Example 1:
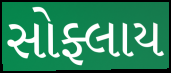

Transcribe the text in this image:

સોફ્લાય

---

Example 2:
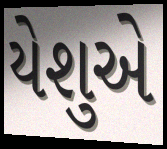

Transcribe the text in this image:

યેશુએ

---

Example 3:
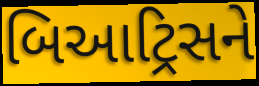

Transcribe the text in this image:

બિઆટ્રિસને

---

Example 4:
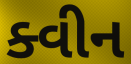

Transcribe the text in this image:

ક્વીન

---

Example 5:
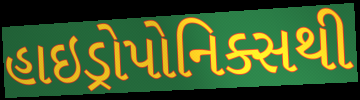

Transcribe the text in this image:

હાઇડ્રોપોનિક્સથી